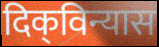
दिक्‌विन्यास